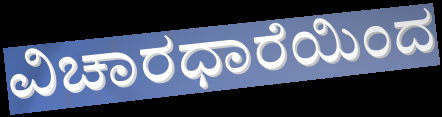
ವಿಚಾರಧಾರೆಯಿಂದ